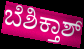
ಬೆಶಿಕ್ತಾಶ್